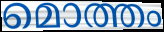
മൊത്തം